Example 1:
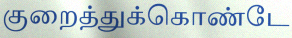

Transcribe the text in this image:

குறைத்துக்கொண்டே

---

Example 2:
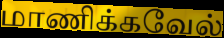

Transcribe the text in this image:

மாணிக்கவேல்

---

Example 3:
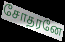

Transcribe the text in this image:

சோதரனே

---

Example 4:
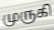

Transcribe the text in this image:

முருகி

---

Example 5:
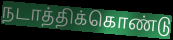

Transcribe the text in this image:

நடாத்திக்கொண்டு